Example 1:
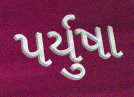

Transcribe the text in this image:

પર્યુષા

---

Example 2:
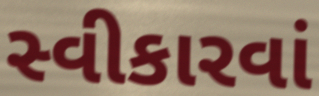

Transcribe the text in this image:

સ્વીકારવાં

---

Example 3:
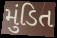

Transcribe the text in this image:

મુંડિત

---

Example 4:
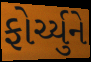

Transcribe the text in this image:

ફોર્ચ્યુને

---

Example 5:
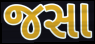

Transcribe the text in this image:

જસા